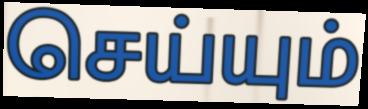
செய்யும்